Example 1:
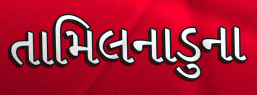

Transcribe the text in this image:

તામિલનાડુના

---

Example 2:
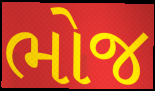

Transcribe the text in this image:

ભોજ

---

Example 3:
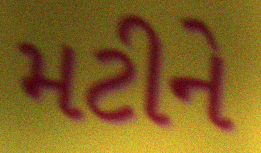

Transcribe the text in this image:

મટીને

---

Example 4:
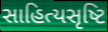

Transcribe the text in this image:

સાહિત્યસૃષ્ટિ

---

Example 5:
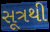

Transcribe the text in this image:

સૂત્રથી